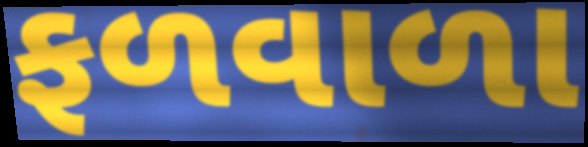
ફળવાળા